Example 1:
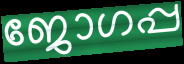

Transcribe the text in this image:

ജോഗപ്പ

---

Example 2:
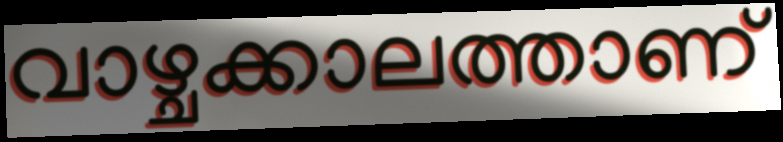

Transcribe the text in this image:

വാഴ്ചക്കാലത്താണ്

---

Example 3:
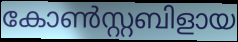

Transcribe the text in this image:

കോൺസ്റ്റബിളായ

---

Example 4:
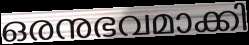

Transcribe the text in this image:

ഒരനുഭവമാക്കി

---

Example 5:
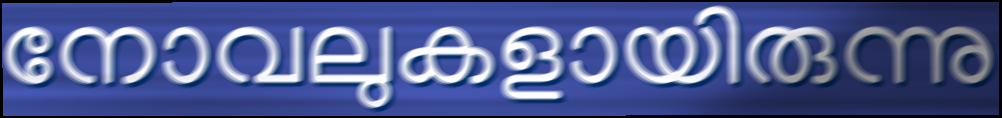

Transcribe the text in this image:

നോവലുകളായിരുന്നു